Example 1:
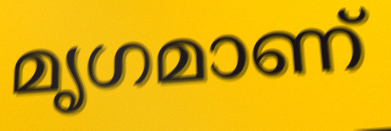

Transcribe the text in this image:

മൃഗമാണ്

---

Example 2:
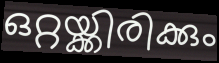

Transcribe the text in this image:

ഒറ്റയ്ക്കിരിക്കും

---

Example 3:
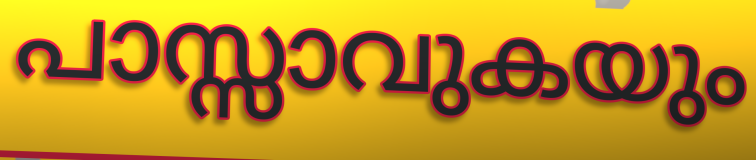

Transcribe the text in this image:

പാസ്സാവുകയും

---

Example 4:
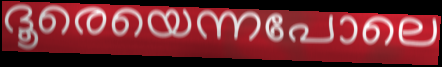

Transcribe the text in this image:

ദൂരെയെന്നപോലെ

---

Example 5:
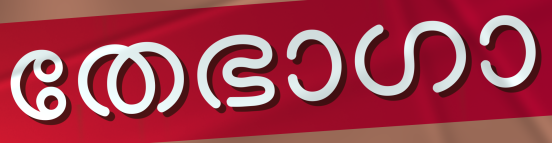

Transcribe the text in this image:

തേഭാഗാ